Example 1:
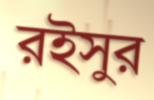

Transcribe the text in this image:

রইসুর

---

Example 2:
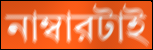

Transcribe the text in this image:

নাম্বারটাই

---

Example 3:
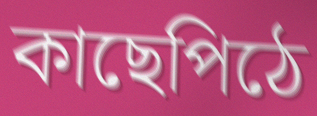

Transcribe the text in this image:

কাছেপিঠে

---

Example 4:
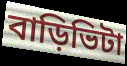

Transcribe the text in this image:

বাড়িভিটা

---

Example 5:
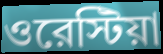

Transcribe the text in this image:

ওরেস্টিয়া